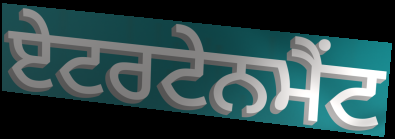
ਏਟਰਟੇਨਮੈਂਟ